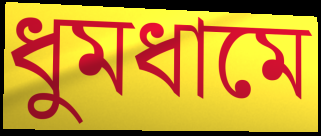
ধুমধামে